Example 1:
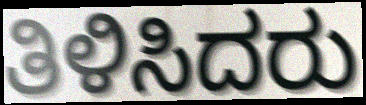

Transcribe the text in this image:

ತಿಳಿಸಿದರು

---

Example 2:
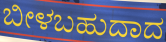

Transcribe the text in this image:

ಬೀಳಬಹುದಾದ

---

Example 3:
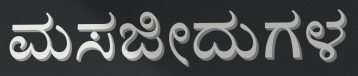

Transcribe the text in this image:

ಮಸಜೀದುಗಳ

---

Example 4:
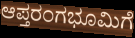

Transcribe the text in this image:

ಆಪ್ತರಂಗಭೂಮಿಗೆ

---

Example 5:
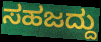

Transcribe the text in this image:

ಸಹಜದ್ದು